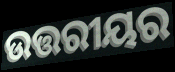
ଉତ୍ତରୀୟର